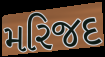
મરિજદ